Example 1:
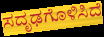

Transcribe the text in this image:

ಸದೃಢಗೊಳಿಸಿದೆ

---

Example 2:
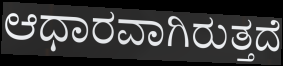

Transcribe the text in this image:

ಆಧಾರವಾಗಿರುತ್ತದೆ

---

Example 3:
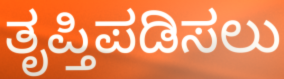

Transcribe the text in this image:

ತೃಪ್ತಿಪಡಿಸಲು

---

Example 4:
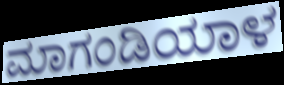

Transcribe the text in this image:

ಮಾಗಂಡಿಯಾಳ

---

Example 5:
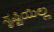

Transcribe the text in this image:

ಸೃಷ್ಟಿಯಿಲ್ಲ